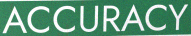
ACCURACY